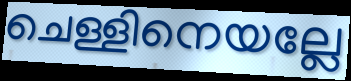
ചെള്ളിനെയല്ലേ